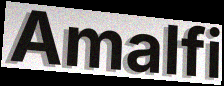
Amalfi